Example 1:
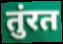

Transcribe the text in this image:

तुंरत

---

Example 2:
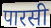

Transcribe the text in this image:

पारसी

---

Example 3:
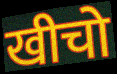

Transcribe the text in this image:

खीचो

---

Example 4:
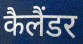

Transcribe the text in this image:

कैलैंडर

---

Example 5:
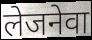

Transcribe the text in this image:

लेजनेवा